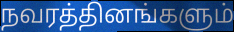
நவரத்தினங்களும்